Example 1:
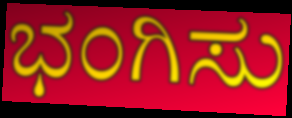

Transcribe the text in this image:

ಭಂಗಿಸು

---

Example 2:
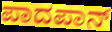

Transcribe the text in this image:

ಪಾದಪಾನ್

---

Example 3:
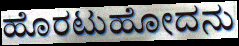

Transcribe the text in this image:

ಹೊರಟುಹೋದನು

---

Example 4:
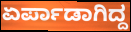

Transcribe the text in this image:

ಏರ್ಪಾಡಾಗಿದ್ದ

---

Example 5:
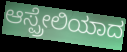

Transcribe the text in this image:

ಆಸ್ಪ್ರೇಲಿಯಾದ